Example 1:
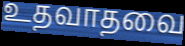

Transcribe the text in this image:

உதவாதவை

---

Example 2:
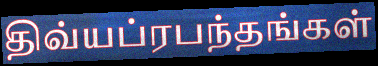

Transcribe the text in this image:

திவ்யப்ரபந்தங்கள்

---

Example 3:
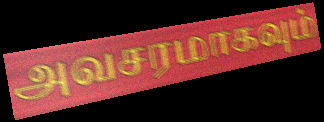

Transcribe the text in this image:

அவசரமாகவும்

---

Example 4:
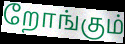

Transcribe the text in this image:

றோங்கும்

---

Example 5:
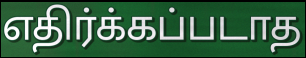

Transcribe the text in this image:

எதிர்க்கப்படாத